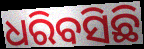
ଧରିବସିଛି